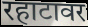
रहाटावर